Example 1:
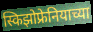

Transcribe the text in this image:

स्किझोफ्रेनियाच्या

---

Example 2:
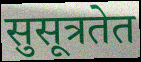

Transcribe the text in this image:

सुसूत्रतेत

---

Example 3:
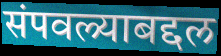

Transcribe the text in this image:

संपवल्याबद्दल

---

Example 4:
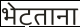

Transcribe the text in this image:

भेटताना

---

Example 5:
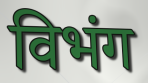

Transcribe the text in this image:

विभंग